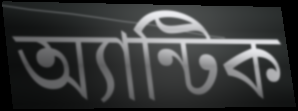
অ্যান্টিক